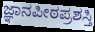
ಜ್ಞಾನಪೀಠಪ್ರಶಸ್ತಿ